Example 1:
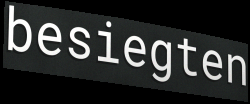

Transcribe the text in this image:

besiegten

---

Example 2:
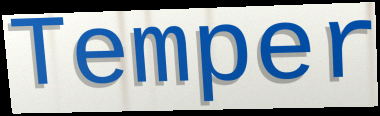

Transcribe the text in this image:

Temper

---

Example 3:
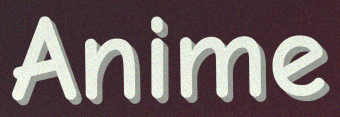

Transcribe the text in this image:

Anime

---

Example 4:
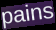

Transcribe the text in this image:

pains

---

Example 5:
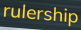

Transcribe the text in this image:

rulership